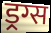
ड्रग्स